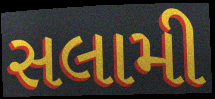
સલામી